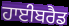
ਹਾਈਬਰੈਡ